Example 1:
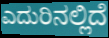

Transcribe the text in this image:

ಎದುರಿನಲ್ಲಿದೆ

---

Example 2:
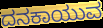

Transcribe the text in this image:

ದನಕಾಯುವ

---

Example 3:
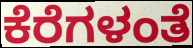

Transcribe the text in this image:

ಕೆರೆಗಳಂತೆ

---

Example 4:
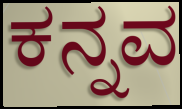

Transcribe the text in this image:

ಕನ್ನವ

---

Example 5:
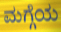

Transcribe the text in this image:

ಮಗ್ಗೆಯ